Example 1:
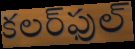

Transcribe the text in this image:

కలర్‌ఫుల్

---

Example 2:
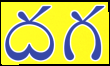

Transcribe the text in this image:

దగ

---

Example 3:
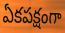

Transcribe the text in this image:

ఏకపక్షంగా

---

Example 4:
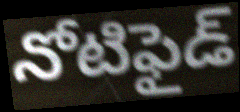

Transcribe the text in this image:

నోటిఫైడ్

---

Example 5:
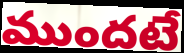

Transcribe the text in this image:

ముందటే